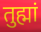
तुह्मां